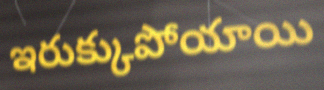
ఇరుక్కుపోయాయి